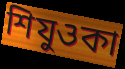
শিযুওকা